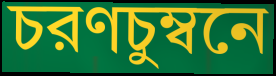
চরণচুম্বনে